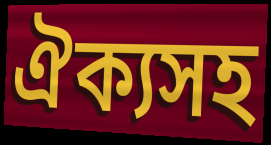
ঐক্যসহ